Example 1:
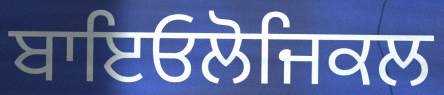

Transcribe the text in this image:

ਬਾਇਓਲੋਜਿਕਲ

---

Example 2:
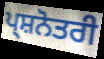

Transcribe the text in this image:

ਪ੍ਸ਼ਨੋਤਰੀ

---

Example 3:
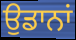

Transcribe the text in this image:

ਉਡਾਨਾਂ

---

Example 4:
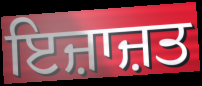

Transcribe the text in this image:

ਇਜ਼ਾਜ਼ਤ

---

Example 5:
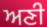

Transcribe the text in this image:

ਅਣੀ